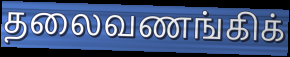
தலைவணங்கிக்